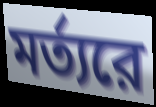
মর্ত্যরে